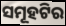
ସମୂହଟିର